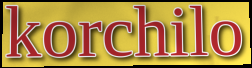
korchilo